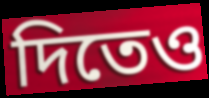
দিতেও